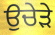
ਉਚੇੜੇ